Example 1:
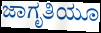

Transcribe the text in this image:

ಜಾಗೃತಿಯೂ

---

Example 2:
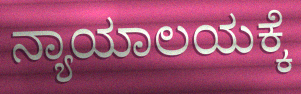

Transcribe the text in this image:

ನ್ಯಾಯಾಲಯಕ್ಕೆ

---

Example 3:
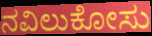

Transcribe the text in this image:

ನವಿಲುಕೋಸು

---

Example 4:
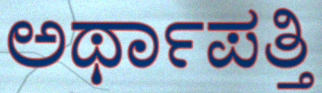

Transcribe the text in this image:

ಅರ್ಥಾಪತ್ತಿ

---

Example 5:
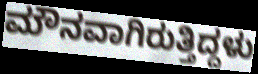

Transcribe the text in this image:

ಮೌನವಾಗಿರುತ್ತಿದ್ದಳು